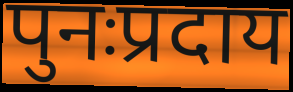
पुनःप्रदाय